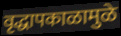
वृद्धापकाळामुळे